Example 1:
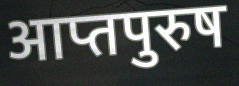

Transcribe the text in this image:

आप्तपुरुष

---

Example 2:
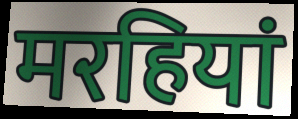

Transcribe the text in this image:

मरहियां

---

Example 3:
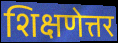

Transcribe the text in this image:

शिक्षणेत्तर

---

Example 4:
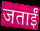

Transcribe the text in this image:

जताईं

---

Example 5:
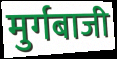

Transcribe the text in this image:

मुर्गबाजी